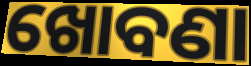
ଖୋବଣା